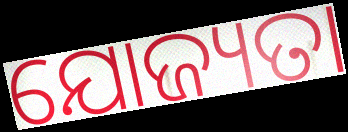
ଯୋଜ୍ୟତା